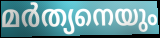
മർത്യനെയും